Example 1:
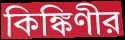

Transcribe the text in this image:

কিঙ্কিণীর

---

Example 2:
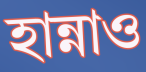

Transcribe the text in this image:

হান্নাও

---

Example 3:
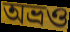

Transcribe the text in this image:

অভ্রও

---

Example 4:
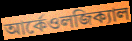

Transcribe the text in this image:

আর্কেওলজিক্যাল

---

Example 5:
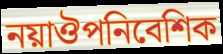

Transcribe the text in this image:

নয়াঔপনিবেশিক